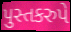
પુસ્તકરુપે